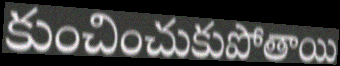
కుంచించుకుపోతాయి